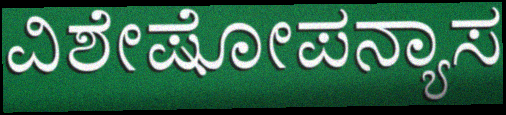
ವಿಶೇಷೋಪನ್ಯಾಸ